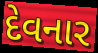
દેવનાર